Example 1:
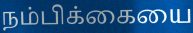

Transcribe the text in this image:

நம்பிக்கையை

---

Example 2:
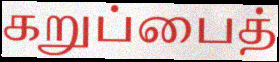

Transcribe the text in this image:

கறுப்பைத்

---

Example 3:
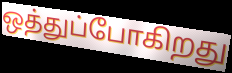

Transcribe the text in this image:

ஒத்துப்போகிறது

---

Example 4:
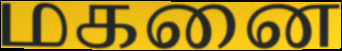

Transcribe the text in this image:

மகனை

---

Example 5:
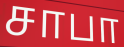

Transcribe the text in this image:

சாபா